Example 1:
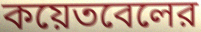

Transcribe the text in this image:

কয়েতবেলের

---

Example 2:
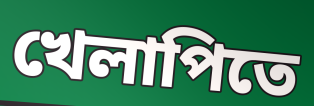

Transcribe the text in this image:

খেলাপিতে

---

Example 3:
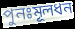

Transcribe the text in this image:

পুনঃমূলধন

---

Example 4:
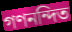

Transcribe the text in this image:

গণনন্দিত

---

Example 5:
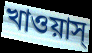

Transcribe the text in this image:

খাওয়াস্